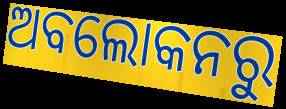
ଅବଲୋକନରୁ